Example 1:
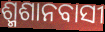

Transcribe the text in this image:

ଶ୍ମଶାନବାସୀ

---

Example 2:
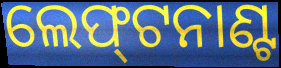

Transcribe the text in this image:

ଲେଫ୍‌ଟନାଣ୍ଟ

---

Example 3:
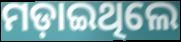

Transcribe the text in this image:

ମଡ଼ାଇଥିଲେ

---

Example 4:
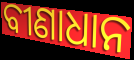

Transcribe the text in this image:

ବୀଣାଧାନ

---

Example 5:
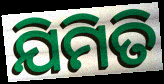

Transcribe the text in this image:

ଯିମିତି